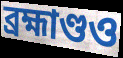
ব্রহ্মাণ্ডও